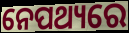
ନେପଥ୍ୟରେ